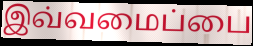
இவ்வமைப்பை